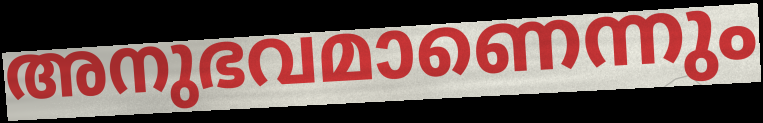
അനുഭവമാണെന്നും